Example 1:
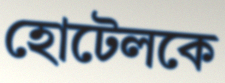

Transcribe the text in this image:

হোটেলকে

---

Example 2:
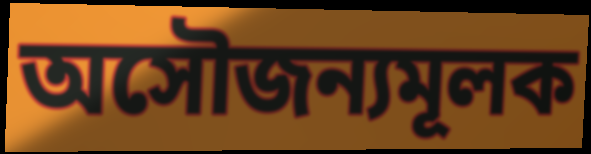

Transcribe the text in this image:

অসৌজন্যমূলক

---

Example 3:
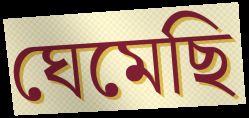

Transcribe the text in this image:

ঘেমেছি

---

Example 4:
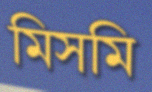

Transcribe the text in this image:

মিসমি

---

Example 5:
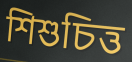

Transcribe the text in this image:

শিশুচিত্ত